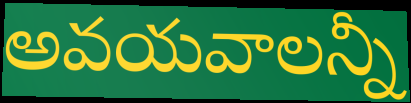
అవయవాలన్నీ